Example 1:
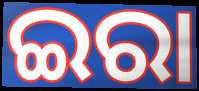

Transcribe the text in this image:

ଇରା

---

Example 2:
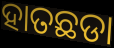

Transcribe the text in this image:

ହାତଛଡା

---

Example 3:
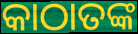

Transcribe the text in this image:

କାଠାତଙ୍କ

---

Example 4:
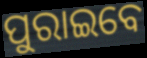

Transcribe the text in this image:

ପୁରାଇବେ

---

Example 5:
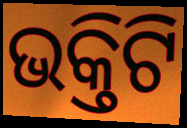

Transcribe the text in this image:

ଭକ୍ତିଟି